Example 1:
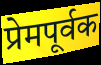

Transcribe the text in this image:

प्रेमपूर्वक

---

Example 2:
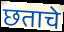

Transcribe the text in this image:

छताचे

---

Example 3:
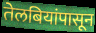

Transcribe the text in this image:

तेलबियांपासून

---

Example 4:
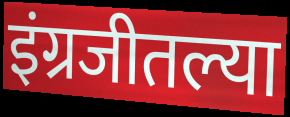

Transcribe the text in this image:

इंग्रजीतल्या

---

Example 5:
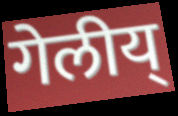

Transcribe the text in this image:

गेलीय्